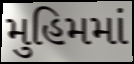
મુહિમમાં